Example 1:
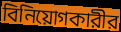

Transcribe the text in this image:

বিনিয়োগকারীর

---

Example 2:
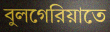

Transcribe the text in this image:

বুলগেরিয়াতে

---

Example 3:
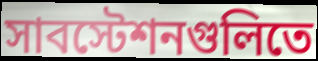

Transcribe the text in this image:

সাবস্টেশনগুলিতে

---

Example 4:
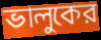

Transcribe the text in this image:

ভালুকের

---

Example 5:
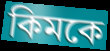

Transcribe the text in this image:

কিমকে